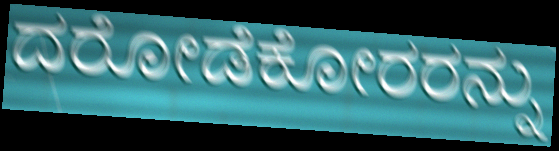
ದರೋಡೆಕೋರರನ್ನು